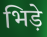
भिड़े